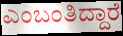
ಎಂಬಂತಿದ್ದಾರೆ